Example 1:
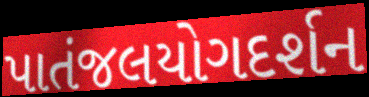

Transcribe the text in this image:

પાતંજલયોગદર્શન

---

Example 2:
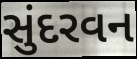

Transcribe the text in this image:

સુંદરવન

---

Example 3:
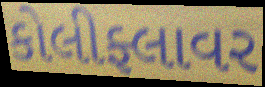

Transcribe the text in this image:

કોલીફ્લાવર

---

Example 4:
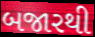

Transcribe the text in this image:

બજારથી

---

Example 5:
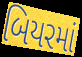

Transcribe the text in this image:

બિયરમાં